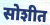
सोशीत